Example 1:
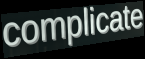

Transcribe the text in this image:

complicate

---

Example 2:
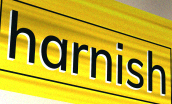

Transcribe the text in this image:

harnish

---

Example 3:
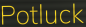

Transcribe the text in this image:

Potluck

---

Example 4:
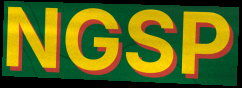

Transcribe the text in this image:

NGSP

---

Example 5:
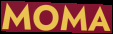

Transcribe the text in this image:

MOMA